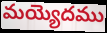
మయ్యెదము